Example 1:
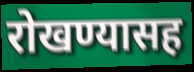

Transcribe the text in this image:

रोखण्यासह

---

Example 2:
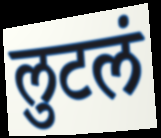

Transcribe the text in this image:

लुटलं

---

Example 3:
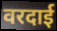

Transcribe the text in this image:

वरदाई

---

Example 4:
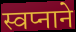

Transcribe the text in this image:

स्वप्नाने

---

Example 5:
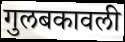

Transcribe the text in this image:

गुलबकावली